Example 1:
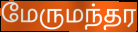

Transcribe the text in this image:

மேருமந்தர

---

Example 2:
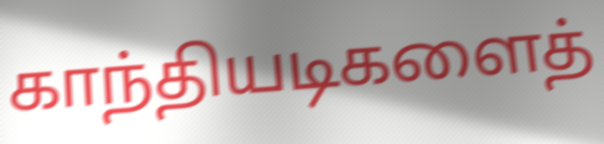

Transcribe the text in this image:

காந்தியடிகளைத்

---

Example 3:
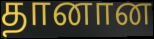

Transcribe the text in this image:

தானான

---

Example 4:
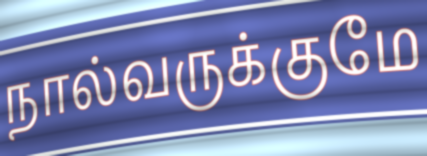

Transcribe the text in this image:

நால்வருக்குமே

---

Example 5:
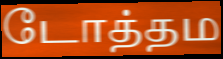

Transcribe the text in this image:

டோத்தம